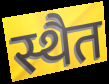
स्थैत